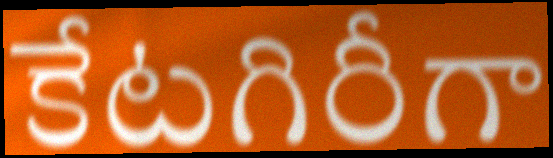
కేటగిరీగా